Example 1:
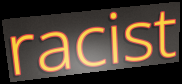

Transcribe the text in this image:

racist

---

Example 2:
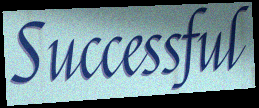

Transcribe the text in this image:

Successful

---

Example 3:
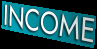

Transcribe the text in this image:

INCOME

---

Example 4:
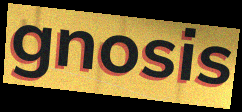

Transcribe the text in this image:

gnosis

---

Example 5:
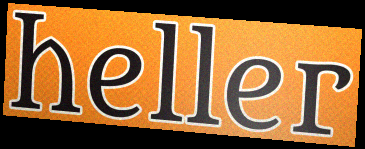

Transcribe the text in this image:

heller